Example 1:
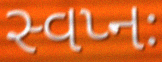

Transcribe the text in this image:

સ્વપ્નઃ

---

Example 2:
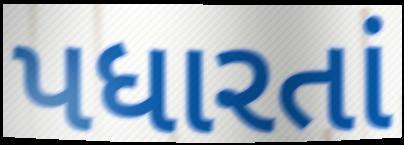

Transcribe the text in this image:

પધારતાં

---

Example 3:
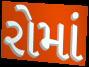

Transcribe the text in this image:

રોમાં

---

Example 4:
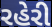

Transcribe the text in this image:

રહેરી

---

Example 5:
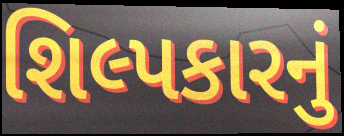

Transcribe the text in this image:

શિલ્પકારનું